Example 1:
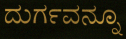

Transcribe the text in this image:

ದುರ್ಗವನ್ನೂ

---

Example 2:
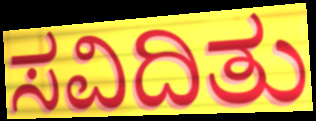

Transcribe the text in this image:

ಸವಿದಿತು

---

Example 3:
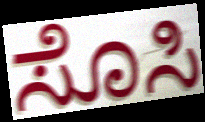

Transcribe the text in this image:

ಸೊಸಿ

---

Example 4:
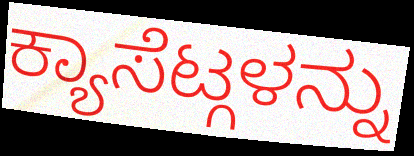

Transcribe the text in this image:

ಕ್ಯಾಸೆಟ್ಗಳನ್ನು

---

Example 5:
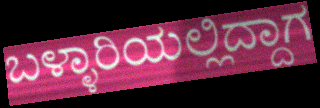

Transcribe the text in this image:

ಬಳ್ಳಾರಿಯಲ್ಲಿದ್ದಾಗ